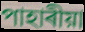
পাহাৰীয়া